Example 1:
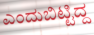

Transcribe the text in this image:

ಎಂದುಬಿಟ್ಟಿದ್ದ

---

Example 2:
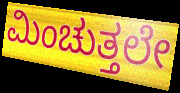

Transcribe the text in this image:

ಮಿಂಚುತ್ತಲೇ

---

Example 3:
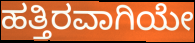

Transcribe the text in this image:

ಹತ್ತಿರವಾಗಿಯೇ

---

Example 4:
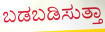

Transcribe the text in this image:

ಬಡಬಡಿಸುತ್ತಾ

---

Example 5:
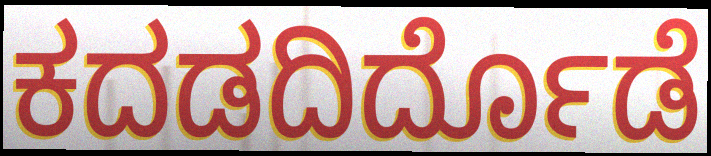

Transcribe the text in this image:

ಕದಡದಿರ್ದೊಡೆ